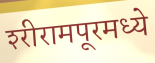
श्रीरामपूरमध्ये